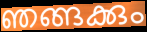
ഞങ്ങക്കും